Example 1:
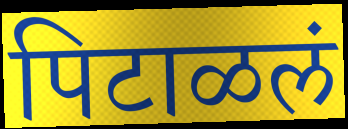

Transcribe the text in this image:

पिटाळलं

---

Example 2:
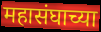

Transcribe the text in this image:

महासंघाच्या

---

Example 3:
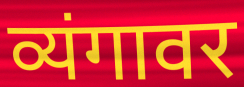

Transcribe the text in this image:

व्यंगावर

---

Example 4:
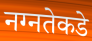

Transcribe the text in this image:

नग्नतेकडे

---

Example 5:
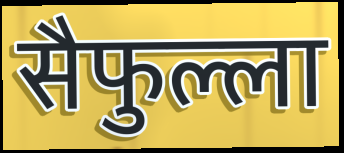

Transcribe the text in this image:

सैफुल्ला